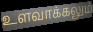
உளவாக்கலும்